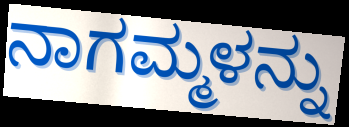
ನಾಗಮ್ಮಳನ್ನು